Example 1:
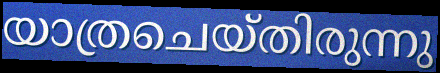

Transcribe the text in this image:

യാത്രചെയ്തിരുന്നു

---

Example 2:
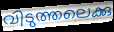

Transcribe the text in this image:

വിടുത്തലെക്കു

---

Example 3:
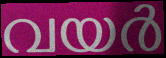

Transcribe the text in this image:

വയർ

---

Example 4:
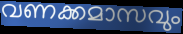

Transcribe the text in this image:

വണക്കമാസവും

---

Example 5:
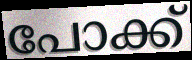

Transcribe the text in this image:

പോക്ക്